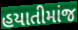
હયાતીમાંજ